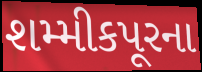
શમ્મીકપૂરના